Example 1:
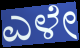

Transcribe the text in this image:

ಎಳೇ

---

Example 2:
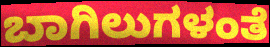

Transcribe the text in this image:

ಬಾಗಿಲುಗಳಂತೆ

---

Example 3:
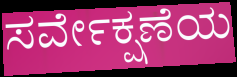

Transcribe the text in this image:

ಸರ್ವೇಕ್ಷಣೆಯ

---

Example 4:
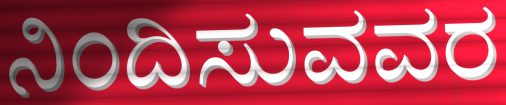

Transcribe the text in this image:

ನಿಂದಿಸುವವರ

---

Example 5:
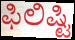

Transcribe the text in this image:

ಫಿಲಿಷ್ಟಿ